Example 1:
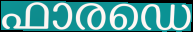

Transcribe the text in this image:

ഫാരഡെ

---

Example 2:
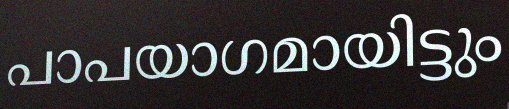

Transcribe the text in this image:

പാപയാഗമായിട്ടും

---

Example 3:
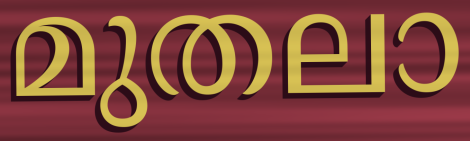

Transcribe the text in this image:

മുതലാ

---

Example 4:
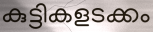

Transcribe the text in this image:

കുട്ടികളടക്കം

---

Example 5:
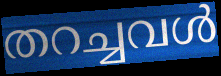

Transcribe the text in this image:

തറച്ചവൾ